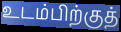
உடம்பிற்குத்